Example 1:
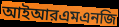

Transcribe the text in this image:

আইআরএমএনজি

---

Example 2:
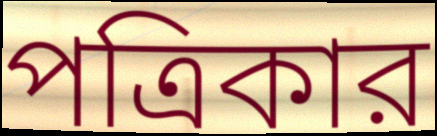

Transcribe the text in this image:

পত্রিকার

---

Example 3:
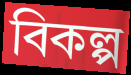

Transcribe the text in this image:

বিকল্প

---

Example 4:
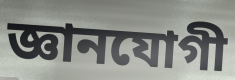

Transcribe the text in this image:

জ্ঞানযোগী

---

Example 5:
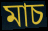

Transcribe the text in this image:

মাচ